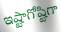
ఇష్టాగోష్టిగా